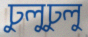
ঢুলুঢুলু